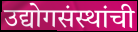
उद्योगसंस्थांची